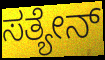
ಸತ್ಯೇನ್